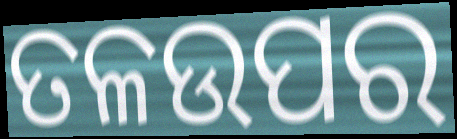
ତଳଉପର